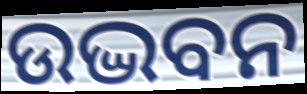
ଉଦ୍ଭବନ